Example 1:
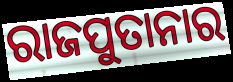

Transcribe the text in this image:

ରାଜପୁତାନାର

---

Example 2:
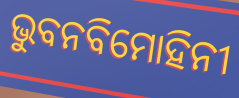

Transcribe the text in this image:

ଭୁବନବିମୋହିନୀ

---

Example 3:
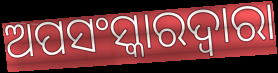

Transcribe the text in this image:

ଅପସଂସ୍କାରଦ୍ୱାରା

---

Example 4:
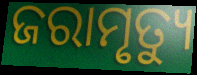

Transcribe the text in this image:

ଜରାମୃତ୍ୟୁ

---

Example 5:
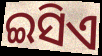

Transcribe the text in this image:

ଇସିଏ